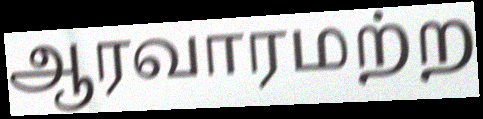
ஆரவாரமற்ற